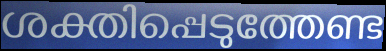
ശക്തിപ്പെടുത്തേണ്ട